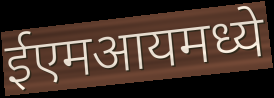
ईएमआयमध्ये